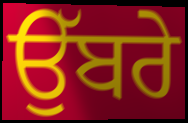
ਉੱਬਰੇ